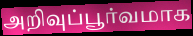
அறிவுப்பூர்வமாக